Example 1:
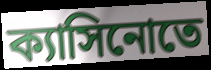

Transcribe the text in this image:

ক্যাসিনোতে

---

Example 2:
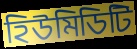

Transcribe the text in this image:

হিউমিডিটি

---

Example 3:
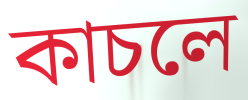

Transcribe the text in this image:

কাচলে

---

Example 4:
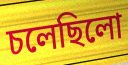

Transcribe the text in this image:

চলেছিলো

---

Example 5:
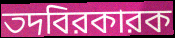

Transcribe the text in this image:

তদবিরকারক